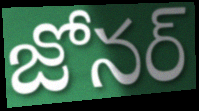
జోనర్